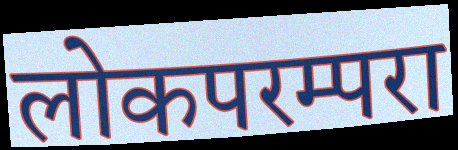
लोकपरम्परा